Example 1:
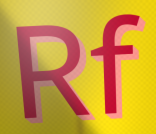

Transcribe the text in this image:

Rf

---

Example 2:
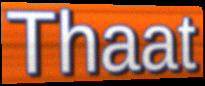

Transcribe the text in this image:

Thaat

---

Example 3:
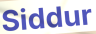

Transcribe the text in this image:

Siddur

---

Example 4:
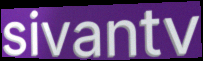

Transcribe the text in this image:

sivantv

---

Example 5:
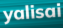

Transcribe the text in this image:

yalisai